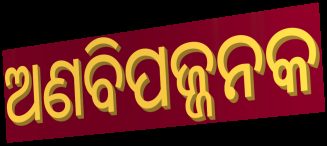
ଅଣବିପଜ୍ଜନକ